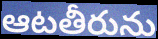
ఆటతీరును